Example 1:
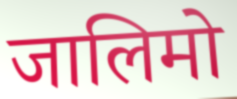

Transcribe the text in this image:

जालिमो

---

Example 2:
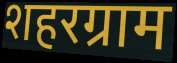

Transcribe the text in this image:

शहरग्राम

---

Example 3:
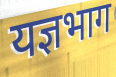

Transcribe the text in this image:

यज्ञभाग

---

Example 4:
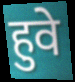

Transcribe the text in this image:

हुवे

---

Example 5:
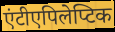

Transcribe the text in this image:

एंटीएपिलेप्टिक